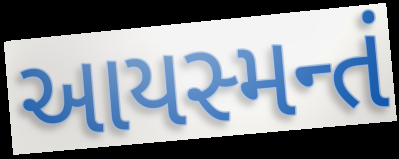
આયસ્મન્તં